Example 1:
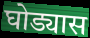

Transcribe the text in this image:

घोड्यास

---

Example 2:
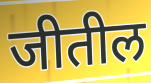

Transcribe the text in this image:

जीतील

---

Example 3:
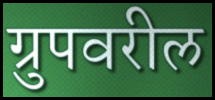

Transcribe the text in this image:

ग्रुपवरील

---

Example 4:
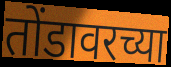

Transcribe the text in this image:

तोंडावरच्या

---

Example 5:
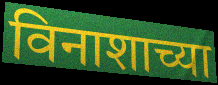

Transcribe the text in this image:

विनाशाच्या